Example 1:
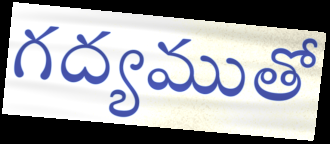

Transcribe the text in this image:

గద్యముతో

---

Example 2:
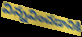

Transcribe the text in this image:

విన్నవించడానికి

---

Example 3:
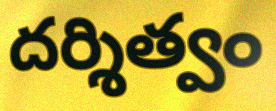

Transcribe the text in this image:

దర్శిత్వం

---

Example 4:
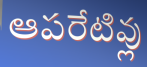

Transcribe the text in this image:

ఆపరేటివ్లు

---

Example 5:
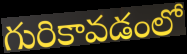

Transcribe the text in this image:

గురికావడంలో